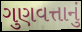
ગુણવત્તાનું